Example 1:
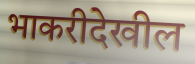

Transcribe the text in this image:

भाकरीदेखील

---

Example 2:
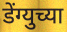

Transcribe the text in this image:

डेंग्युच्या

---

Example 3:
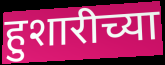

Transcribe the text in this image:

हुशारीच्या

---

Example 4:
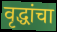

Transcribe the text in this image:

वृद्धांचा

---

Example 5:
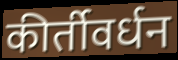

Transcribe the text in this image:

कीर्तीवर्धन